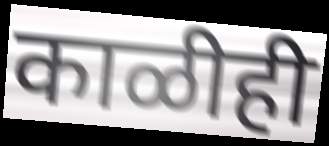
काळीही